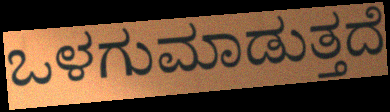
ಒಳಗುಮಾಡುತ್ತದೆ